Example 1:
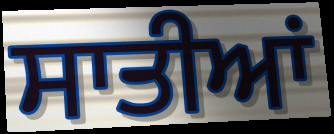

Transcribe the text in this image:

ਸਾਤੀਆਂ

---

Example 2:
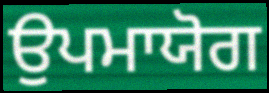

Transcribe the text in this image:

ਉਪਮਾਯੋਗ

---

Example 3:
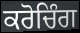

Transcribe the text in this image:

ਕਰੋਚਿੰਗ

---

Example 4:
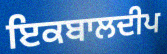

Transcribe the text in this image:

ਇਕਬਾਲਦੀਪ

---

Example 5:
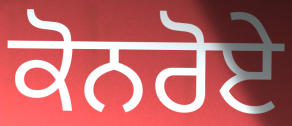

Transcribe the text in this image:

ਕੋਨਰੋਏ